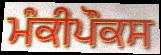
ਮੰਕੀਪੌਕਸ